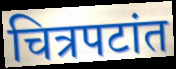
चित्रपटांत